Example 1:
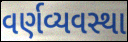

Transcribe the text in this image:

વર્ણવ્યવસ્થા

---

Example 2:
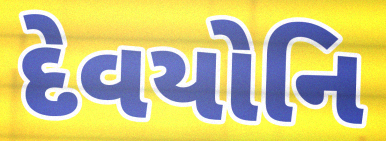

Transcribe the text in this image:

દેવયોનિ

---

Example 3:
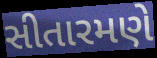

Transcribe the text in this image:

સીતારમણે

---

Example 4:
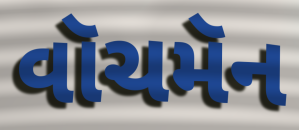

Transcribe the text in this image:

વૉચમૅન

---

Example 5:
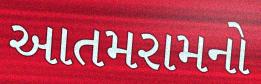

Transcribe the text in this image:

આતમરામનો